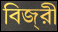
বিজ্‌রী